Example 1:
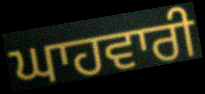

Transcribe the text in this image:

ਘਾਹਵਾਰੀ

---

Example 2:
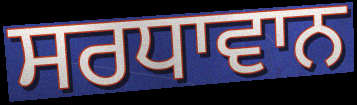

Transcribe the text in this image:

ਸਰਧਾਵਾਨ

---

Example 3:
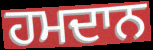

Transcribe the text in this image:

ਹਮਦਾਨ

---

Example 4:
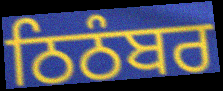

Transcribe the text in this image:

ਠਿਠੰਬਰ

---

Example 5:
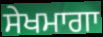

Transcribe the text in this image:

ਸੇਖਮਾਗਾ